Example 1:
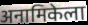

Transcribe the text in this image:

अनामिकेला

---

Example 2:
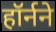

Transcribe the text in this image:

हॉर्नने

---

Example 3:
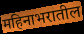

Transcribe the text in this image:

महिनाभरातील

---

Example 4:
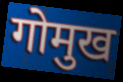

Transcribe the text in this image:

गोमुख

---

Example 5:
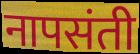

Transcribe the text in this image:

नापसंती